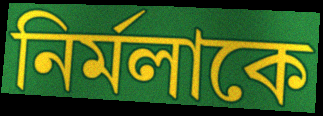
নির্মলাকে